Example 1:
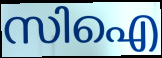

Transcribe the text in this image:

സിഐ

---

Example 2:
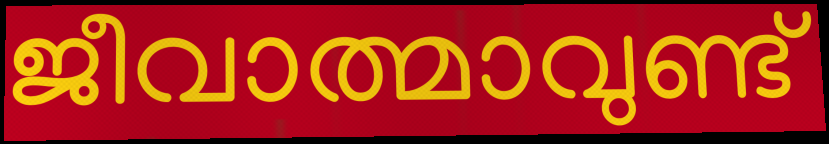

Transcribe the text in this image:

ജീവാത്മാവുണ്ട്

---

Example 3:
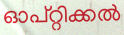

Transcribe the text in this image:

ഓപ്റ്റിക്കൽ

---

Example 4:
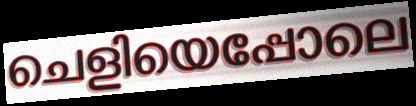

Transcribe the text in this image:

ചെളിയെപ്പോലെ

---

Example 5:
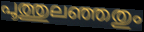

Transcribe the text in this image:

പൂത്തുലഞ്ഞതും